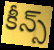
కీన్స్